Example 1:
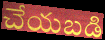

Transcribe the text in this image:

చేయబడి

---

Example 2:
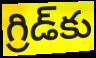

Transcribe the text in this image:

గ్రిడ్‌కు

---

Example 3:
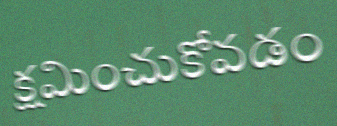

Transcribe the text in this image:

క్షమించుకోవడం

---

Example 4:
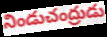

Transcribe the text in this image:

నిండుచంద్రుడు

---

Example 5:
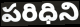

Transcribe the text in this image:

పరిధిని